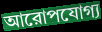
আরোপযোগ্য